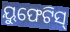
ୟୁଫେଟିସ୍